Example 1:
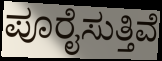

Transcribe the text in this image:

ಪೂರೈಸುತ್ತಿವೆ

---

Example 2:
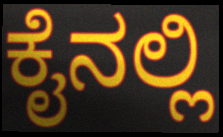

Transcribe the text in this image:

ಕೈನಲ್ಲಿ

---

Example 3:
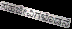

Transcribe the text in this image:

ಸಹಜೀವಿಗಳೊಡನೆ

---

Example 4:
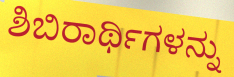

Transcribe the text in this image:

ಶಿಬಿರಾರ್ಥಿಗಳನ್ನು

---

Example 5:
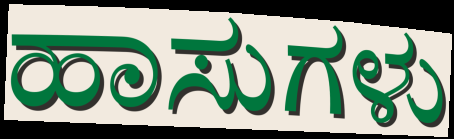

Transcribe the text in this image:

ಹಾಸುಗಳು